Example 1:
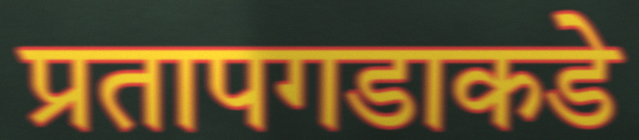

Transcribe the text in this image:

प्रतापगडाकडे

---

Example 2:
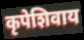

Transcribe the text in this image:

कृपेशिवाय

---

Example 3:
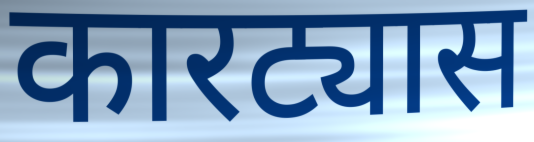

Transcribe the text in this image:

कारट्यास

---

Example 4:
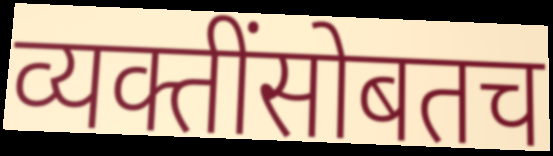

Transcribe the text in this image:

व्यक्तींसोबतच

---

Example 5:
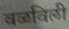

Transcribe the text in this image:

वळविली